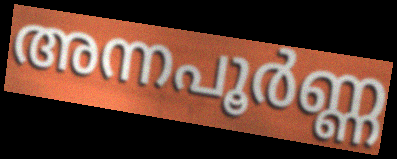
അന്നപൂർണ്ണ